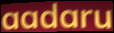
aadaru